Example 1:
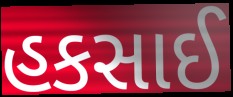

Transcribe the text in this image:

હકસાઈ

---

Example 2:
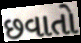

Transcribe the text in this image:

છવાતો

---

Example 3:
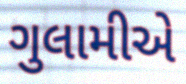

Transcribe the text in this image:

ગુલામીએ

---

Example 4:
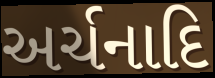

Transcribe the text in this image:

અર્ચનાદિ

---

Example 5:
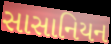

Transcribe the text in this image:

સાસાનિયન